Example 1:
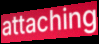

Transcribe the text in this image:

attaching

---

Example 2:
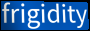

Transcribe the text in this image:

frigidity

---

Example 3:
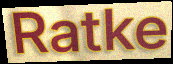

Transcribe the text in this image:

Ratke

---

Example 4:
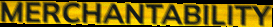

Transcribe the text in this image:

MERCHANTABILITY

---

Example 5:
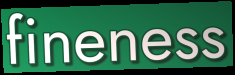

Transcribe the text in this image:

fineness